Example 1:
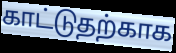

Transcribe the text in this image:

காட்டுதற்காக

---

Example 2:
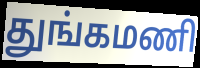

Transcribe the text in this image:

துங்கமணி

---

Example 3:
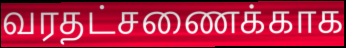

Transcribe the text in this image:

வரதட்சணைக்காக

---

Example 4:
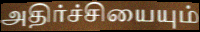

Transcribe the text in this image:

அதிர்ச்சியையும்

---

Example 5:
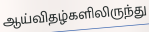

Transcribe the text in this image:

ஆய்விதழ்களிலிருந்து